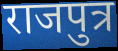
राजपुत्र